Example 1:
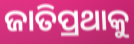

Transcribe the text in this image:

ଜାତିପ୍ରଥାକୁ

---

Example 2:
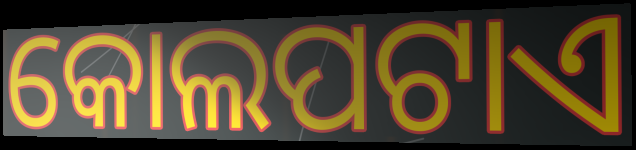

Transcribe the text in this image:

କୋଲପଟାଏ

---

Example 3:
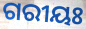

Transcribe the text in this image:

ଗରୀୟଃ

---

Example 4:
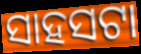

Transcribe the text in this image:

ସାହସଟା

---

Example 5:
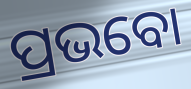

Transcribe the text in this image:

ପ୍ରଭବୋ